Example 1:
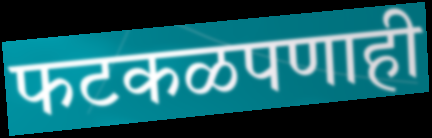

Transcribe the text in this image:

फटकळपणाही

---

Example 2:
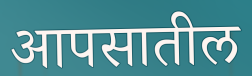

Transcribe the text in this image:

आपसातील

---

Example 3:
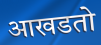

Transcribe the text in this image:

आखडतो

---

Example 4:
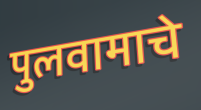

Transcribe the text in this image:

पुलवामाचे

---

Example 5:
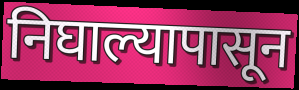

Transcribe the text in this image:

निघाल्यापासून